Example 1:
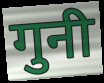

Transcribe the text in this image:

गुनी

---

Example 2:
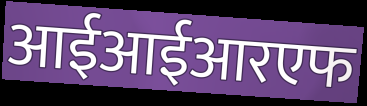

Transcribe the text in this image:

आईआईआरएफ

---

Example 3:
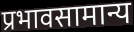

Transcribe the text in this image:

प्रभावसामान्य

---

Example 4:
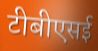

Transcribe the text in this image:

टीबीएसई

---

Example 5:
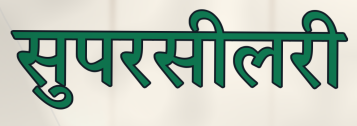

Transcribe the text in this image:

सुपरसीलरी